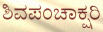
ಶಿವಪಂಚಾಕ್ಷರಿ